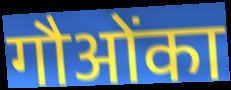
गौओंका